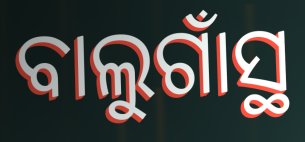
ବାଲୁଗାଁସ୍ଥ